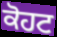
ਕੋਹਟ